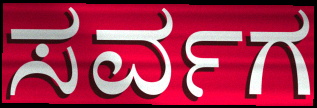
ಸರ್ವಗ